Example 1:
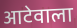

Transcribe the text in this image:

आटेवाला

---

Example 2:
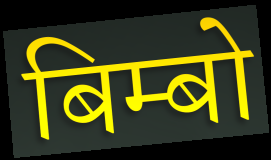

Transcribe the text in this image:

बिम्बो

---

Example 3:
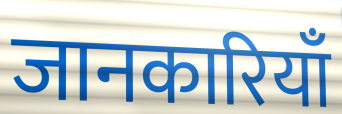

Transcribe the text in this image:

जानकारियाँ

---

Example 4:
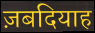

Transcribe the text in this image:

ज़बदियाह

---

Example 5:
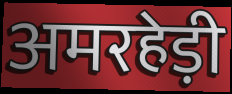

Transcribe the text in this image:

अमरहेड़ी